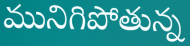
మునిగిపోతున్న